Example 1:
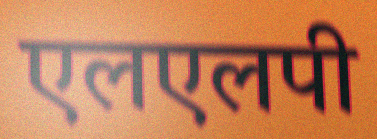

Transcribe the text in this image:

एलएलपी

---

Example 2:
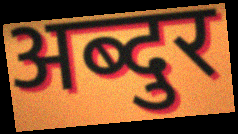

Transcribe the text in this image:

अब्दुर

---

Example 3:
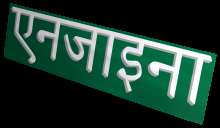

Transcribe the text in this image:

एनजाइना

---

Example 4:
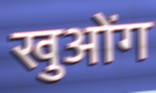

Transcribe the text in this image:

खुओंग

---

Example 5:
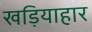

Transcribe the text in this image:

खड़ियाहार